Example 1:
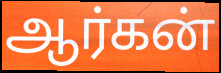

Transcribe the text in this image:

ஆர்கன்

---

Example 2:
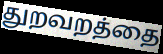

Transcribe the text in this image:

துறவறத்தை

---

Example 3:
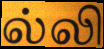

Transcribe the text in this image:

ல்லி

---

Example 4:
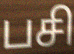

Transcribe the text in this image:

பசி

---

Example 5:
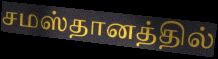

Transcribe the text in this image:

சமஸ்தானத்தில்